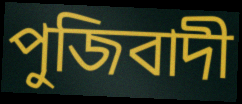
পুজিবাদী